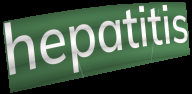
hepatitis